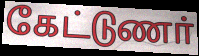
கேட்டுணர்